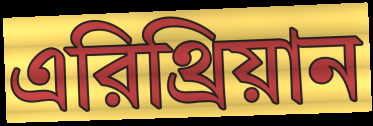
এরিথ্রিয়ান